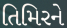
તિમિરને